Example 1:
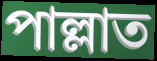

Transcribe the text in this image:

পাল্লাত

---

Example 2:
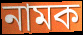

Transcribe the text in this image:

নামক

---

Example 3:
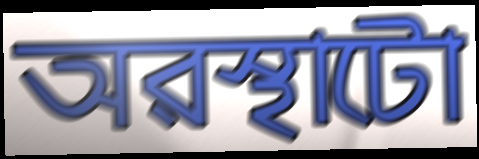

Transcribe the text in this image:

অৱস্থাটো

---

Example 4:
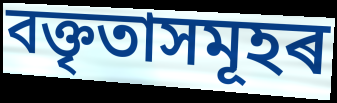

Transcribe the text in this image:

বক্তৃতাসমূহৰ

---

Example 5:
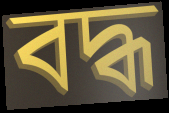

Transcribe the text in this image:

বদ্ধ